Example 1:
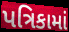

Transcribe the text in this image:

પત્રિકામાં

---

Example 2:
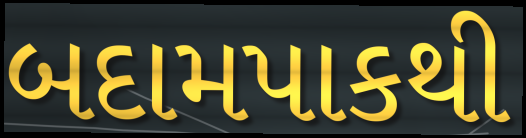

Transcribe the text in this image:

બદામપાકથી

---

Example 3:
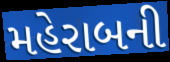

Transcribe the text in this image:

મહેરાબની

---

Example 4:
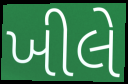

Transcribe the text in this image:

ખીલે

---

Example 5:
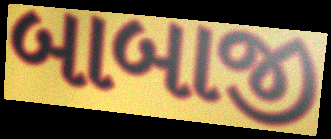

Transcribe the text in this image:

બાબાજી